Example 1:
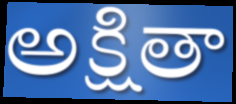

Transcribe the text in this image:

అక్షితా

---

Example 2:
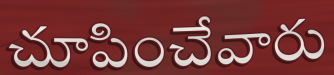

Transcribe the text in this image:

చూపించేవారు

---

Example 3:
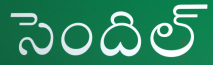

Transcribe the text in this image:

సెందిల్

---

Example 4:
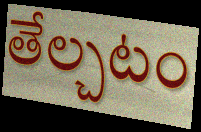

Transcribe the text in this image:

తేల్చటం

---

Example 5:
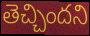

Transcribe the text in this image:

తెచ్చిందని